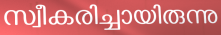
സ്വീകരിച്ചായിരുന്നു